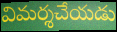
విమర్శచేయడు